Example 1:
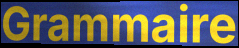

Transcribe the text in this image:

Grammaire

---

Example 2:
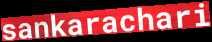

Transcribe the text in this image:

sankarachari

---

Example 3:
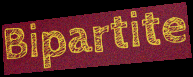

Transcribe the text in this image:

Bipartite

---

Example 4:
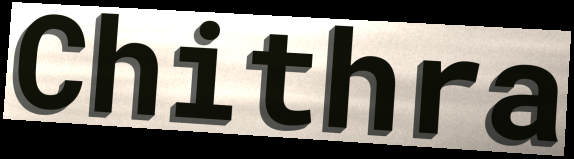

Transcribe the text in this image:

Chithra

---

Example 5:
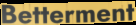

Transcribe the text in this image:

Betterment